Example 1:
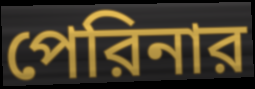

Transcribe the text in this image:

পেরিনার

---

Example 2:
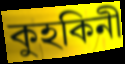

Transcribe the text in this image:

কুহকিনী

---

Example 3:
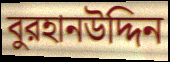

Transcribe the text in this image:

বুরহানউদ্দিন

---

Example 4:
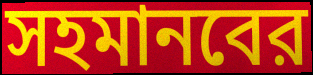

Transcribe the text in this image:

সহমানবের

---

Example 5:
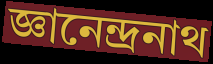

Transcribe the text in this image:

জ্ঞানেন্দ্রনাথ